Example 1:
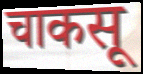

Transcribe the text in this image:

चाकसू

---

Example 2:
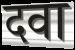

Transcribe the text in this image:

दवा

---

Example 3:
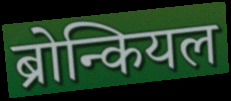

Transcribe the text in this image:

ब्रोन्कियल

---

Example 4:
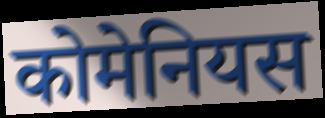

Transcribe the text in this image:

कोमेनियस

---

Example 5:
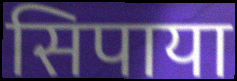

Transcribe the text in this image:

सिपाया